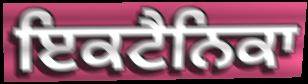
ਇਕਟੈਨਿਕਾ